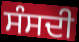
ਸੰਸਦੀ